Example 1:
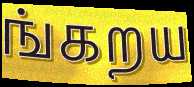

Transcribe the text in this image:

ங்கறய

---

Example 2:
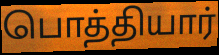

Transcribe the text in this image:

பொத்தியார்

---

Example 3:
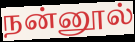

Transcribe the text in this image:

நன்னூல்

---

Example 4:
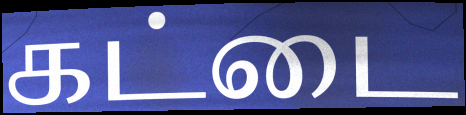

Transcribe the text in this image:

கட்டை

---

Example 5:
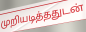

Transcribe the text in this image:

முறியடித்ததுடன்